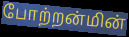
போற்றன்மின்